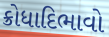
ક્રોધાદિભાવો